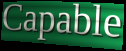
Capable